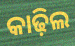
କାଢ଼ିଲ